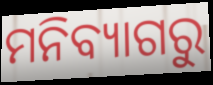
ମନିବ୍ୟାଗରୁ